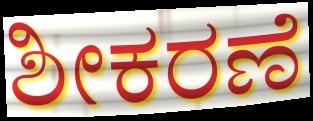
ಶೀಕರಣೆ